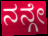
ನನ್ಗೇ